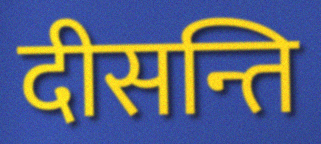
दीसन्ति